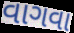
વાગવા